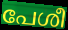
പേശീ